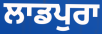
ਲਾਡਪੁਰਾ